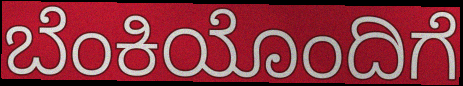
ಬೆಂಕಿಯೊಂದಿಗೆ